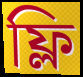
ফ্লি